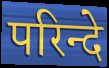
परिन्दे